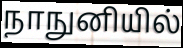
நாநுனியில்